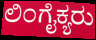
ಲಿಂಗೈಕ್ಯರು